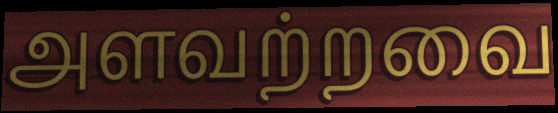
அளவற்றவை